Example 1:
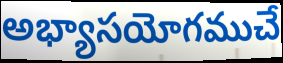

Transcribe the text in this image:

అభ్యాసయోగముచే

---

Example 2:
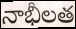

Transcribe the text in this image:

నాభీలత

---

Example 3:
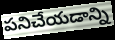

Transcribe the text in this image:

పనిచేయడాన్ని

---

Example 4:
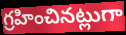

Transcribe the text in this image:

గ్రహించినట్లుగా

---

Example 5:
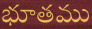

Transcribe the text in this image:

భూతము